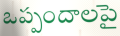
ఒప్పందాలపై